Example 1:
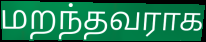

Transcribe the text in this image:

மறந்தவராக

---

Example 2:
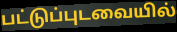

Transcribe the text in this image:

பட்டுப்புடவையில்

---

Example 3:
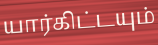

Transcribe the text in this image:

யார்கிட்டயும்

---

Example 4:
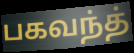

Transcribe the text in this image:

பகவந்த்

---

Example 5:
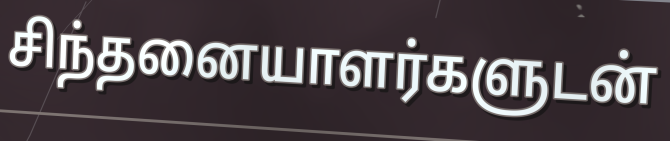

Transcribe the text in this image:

சிந்தனையாளர்களுடன்